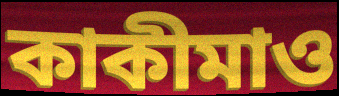
কাকীমাও